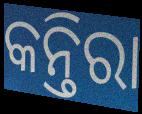
କନ୍ତିରା